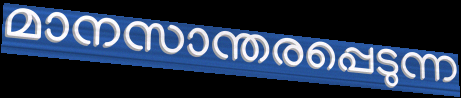
മാനസാന്തരപ്പെടുന്ന